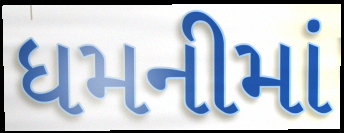
ધમનીમાં